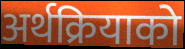
अर्थक्रियाको